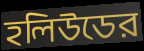
হলিউডের